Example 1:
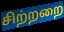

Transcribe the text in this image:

சிற்றறை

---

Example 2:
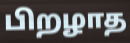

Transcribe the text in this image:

பிறழாத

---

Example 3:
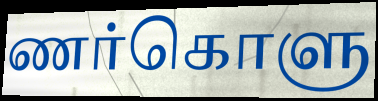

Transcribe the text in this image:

ணர்கொளு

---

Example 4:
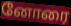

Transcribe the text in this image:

னோரை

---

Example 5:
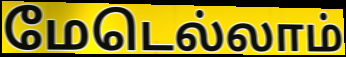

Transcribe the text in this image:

மேடெல்லாம்